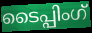
ടൈപ്പിംഗ്